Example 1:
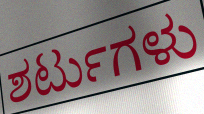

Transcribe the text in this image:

ಶರ್ಟುಗಳು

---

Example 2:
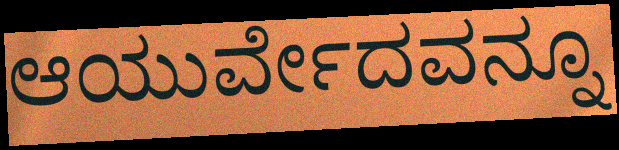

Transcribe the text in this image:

ಆಯುರ್ವೇದವನ್ನೂ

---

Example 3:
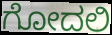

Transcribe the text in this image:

ಗೋದಲಿ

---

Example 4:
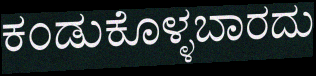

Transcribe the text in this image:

ಕಂಡುಕೊಳ್ಳಬಾರದು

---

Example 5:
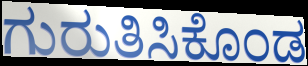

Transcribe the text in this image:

ಗುರುತಿಸಿಕೊಂಡ